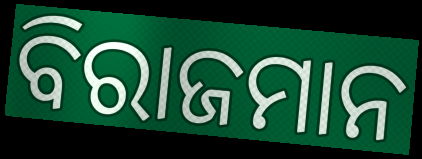
ବିରାଜମାନ